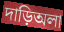
দাড়িঅলা